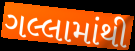
ગલ્લામાંથી